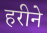
हरीने